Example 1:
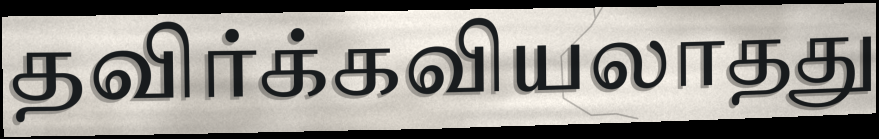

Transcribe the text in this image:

தவிர்க்கவியலாதது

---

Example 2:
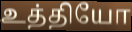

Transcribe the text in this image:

உத்தியோ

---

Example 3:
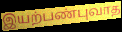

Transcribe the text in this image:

இயற்பண்புவாத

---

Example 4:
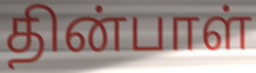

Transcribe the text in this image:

தின்பாள்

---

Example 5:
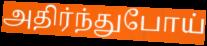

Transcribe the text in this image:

அதிர்ந்துபோய்